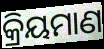
କ୍ରିୟମାଣ